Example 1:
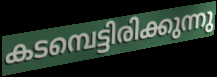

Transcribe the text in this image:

കടമ്പെട്ടിരിക്കുന്നു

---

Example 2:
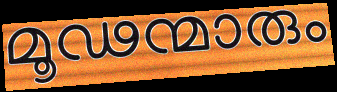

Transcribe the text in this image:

മൂഢന്മാരും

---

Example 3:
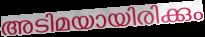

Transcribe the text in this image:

അടിമയായിരിക്കും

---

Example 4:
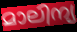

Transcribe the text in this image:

മാലിന്യ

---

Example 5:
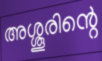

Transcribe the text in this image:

അശ്ശൂരിന്റെ